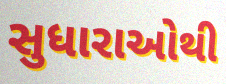
સુધારાઓથી